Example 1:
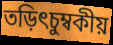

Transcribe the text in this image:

তড়িৎচুম্বকীয়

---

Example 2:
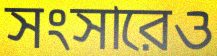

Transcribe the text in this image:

সংসারেও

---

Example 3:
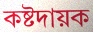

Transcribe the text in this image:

কষ্টদায়ক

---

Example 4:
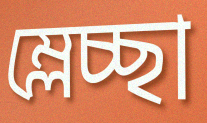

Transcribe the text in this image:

ম্লেচ্ছা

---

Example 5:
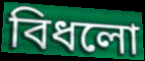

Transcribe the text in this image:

বিধলো